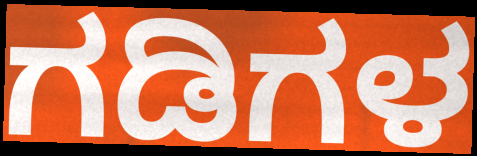
ಗಡಿಗಳ